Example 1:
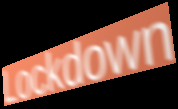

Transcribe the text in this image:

Lockdown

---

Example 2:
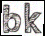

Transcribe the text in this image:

bk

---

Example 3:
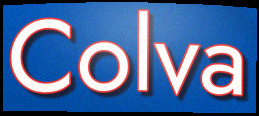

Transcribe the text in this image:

Colva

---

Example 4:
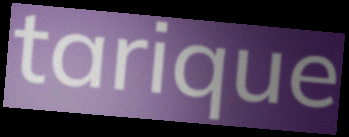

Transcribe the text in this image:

tarique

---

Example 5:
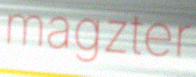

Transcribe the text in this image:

magzter